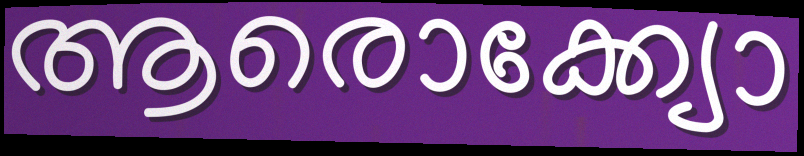
ആരൊക്ക്യോ